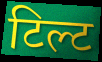
टिल्ट